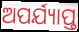
ଅପର୍ଯ୍ୟାପ୍ତ